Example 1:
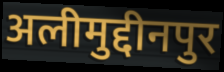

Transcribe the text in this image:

अलीमुद्दीनपुर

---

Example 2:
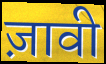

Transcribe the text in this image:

ज़ावी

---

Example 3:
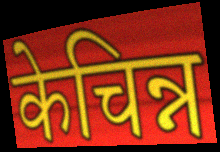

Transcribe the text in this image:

केचिन्न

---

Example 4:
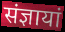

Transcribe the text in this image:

संज्ञायां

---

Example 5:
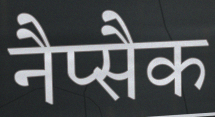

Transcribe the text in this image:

नैप्सैक